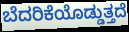
ಬೆದರಿಕೆಯೊಡ್ಡುತ್ತದೆ